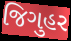
જિગુહર